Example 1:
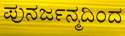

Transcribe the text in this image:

ಪುನರ್ಜನ್ಮದಿಂದ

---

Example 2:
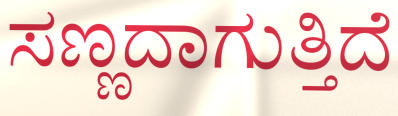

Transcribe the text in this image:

ಸಣ್ಣದಾಗುತ್ತಿದೆ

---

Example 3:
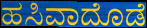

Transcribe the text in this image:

ಹಸಿವಾದೊಡೆ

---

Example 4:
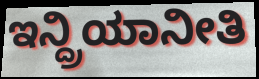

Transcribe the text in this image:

ಇನ್ದ್ರಿಯಾನೀತಿ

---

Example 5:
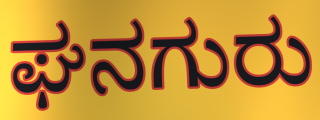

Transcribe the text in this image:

ಘನಗುರು